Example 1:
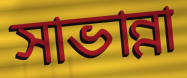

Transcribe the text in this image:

সাভান্না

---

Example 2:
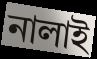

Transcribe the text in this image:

নালাই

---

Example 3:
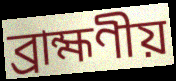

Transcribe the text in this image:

ব্রাহ্মণীয়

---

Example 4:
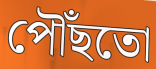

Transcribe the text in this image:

পৌঁছতো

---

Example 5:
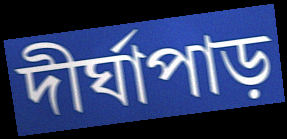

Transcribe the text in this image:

দীর্ঘাপাড়